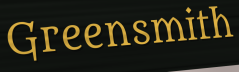
Greensmith